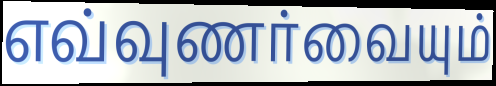
எவ்வுணர்வையும்